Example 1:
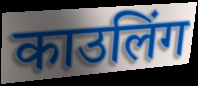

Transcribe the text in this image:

काउलिंग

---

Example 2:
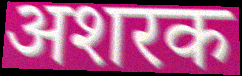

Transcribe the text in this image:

अशरक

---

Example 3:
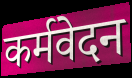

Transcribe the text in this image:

कर्मवेदन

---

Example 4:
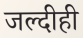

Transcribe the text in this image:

जल्दीही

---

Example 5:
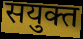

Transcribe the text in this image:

सयुक्‍त